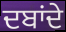
ਦਬਾਂਦੇ